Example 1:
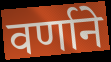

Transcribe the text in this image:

वर्णाने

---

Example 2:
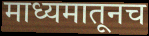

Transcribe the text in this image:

माध्यमातूनच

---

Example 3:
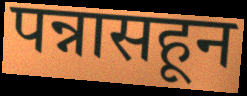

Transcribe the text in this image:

पन्नासहून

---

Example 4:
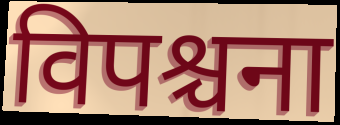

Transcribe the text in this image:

विपश्चना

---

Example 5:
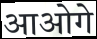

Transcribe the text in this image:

आओगे